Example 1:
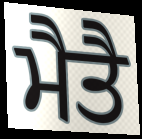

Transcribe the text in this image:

ਮੈਤੈ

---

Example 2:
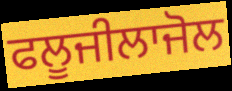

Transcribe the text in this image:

ਫਲੂਜੀਲਾਜੋਲ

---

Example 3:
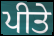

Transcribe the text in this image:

ਪੀਤੇ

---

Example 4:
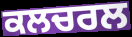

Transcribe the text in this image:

ਕਲਚਰਲ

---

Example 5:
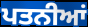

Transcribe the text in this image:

ਪਤਨੀਆਂ